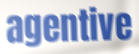
agentive